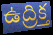
ఉద్రిక్త